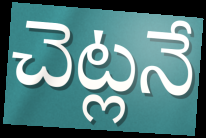
చెట్లనే